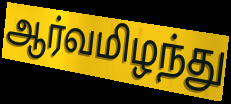
ஆர்வமிழந்து